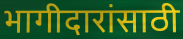
भागीदारांसाठी